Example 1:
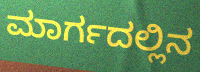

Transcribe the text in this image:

ಮಾರ್ಗದಲ್ಲಿನ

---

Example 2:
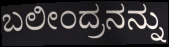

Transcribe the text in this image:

ಬಲೀಂದ್ರನನ್ನು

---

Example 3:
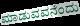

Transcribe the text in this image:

ಮಾಡುವವನೆಂದು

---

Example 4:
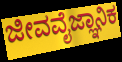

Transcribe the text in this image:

ಜೀವವೈಜ್ಞಾನಿಕ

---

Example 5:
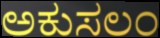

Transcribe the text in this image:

ಅಕುಸಲಂ